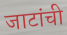
जाटांची